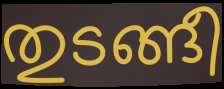
തുടങ്ങീ